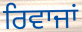
ਰਿਵਾਜਾਂ